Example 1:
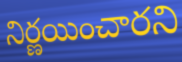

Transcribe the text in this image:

నిర్ణయించారని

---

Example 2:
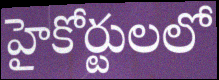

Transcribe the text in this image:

హైకోర్టులలో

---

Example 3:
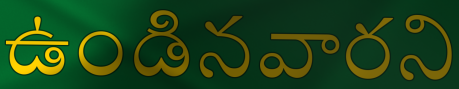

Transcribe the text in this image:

ఉండినవారని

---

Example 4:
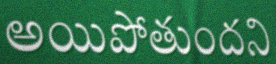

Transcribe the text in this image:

అయిపోతుందని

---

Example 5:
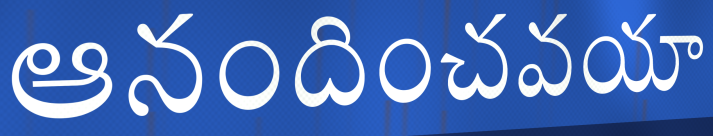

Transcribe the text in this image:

ఆనందించవయా